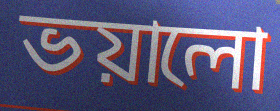
ভয়ালো